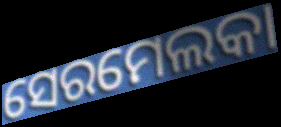
ସେରମେଲକା